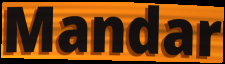
Mandar